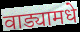
वाड्यामधे